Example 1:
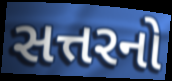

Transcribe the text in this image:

સત્તરનો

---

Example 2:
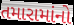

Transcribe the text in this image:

તમારામાંનો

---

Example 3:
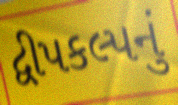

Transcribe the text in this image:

દ્વીપકલ્પનું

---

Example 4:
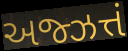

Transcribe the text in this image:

અજ્ઝત્તં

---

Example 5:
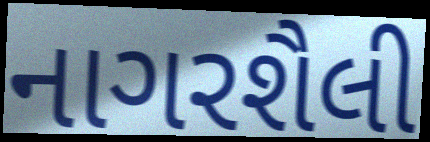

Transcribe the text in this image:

નાગરશૈલી